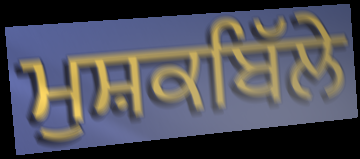
ਮੁਸ਼ਕਬਿੱਲੇ